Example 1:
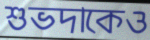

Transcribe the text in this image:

শুভদাকেও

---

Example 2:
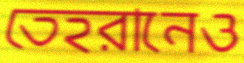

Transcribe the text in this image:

তেহরানেও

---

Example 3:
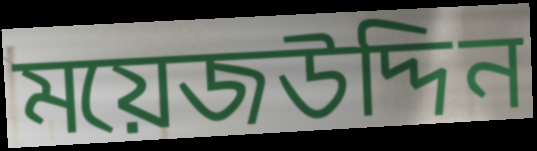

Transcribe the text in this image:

ময়েজউদ্দিন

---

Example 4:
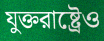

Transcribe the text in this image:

যুক্তরাষ্ট্রেও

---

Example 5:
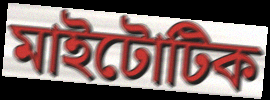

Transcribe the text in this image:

মাইটোটিক